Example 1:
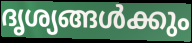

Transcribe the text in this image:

ദൃശ്യങ്ങൾക്കും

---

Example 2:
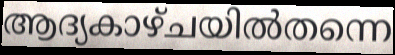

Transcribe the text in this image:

ആദ്യകാഴ്ചയിൽതന്നെ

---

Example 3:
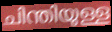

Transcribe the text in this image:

ചിന്തിയുള്ള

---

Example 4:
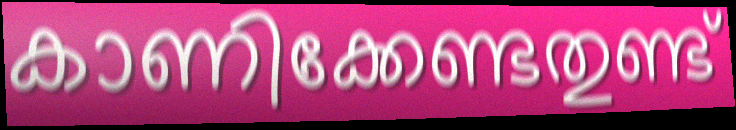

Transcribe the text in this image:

കാണിക്കേണ്ടതുണ്ട്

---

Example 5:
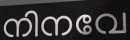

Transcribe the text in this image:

നിനവേ